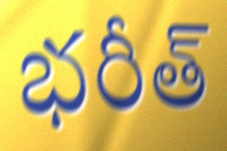
భరీత్